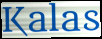
Kalas